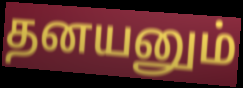
தனயனும்